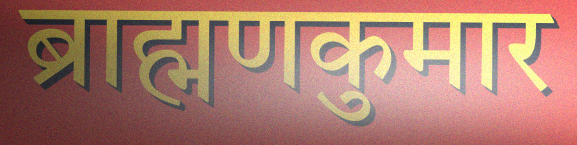
ब्राह्मणकुमार